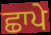
ਛਾਪੇ